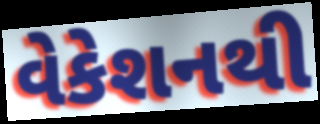
વેકેશનથી